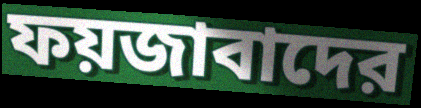
ফয়জাবাদের